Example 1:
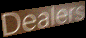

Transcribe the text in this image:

Dealers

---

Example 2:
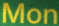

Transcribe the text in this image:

Mon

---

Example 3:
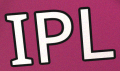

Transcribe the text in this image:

IPL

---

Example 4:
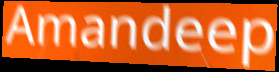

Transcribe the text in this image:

Amandeep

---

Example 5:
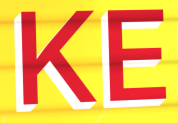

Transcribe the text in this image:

KE